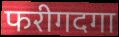
फरीगदगा